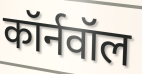
कॉर्नवॉल